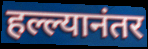
हल्ल्यानंतर